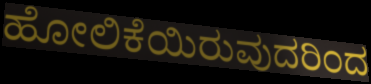
ಹೋಲಿಕೆಯಿರುವುದರಿಂದ